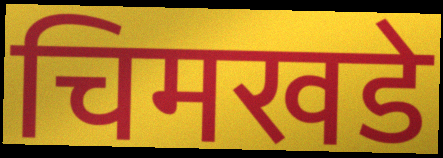
चिमखडे